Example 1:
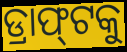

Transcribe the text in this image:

ଡ୍ରାଫ୍‌ଟକୁ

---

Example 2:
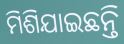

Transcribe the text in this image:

ମିଶିଯାଇଛନ୍ତି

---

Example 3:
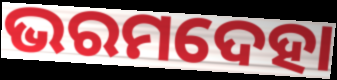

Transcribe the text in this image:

ଭରମଦେହା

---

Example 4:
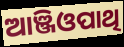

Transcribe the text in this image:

ଆଞ୍ଜିଓପାଥି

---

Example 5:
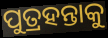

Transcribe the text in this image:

ପୁତ୍ରହନ୍ତାକୁ